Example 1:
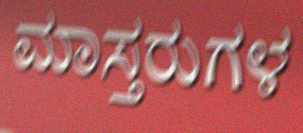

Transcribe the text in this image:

ಮಾಸ್ತರುಗಳ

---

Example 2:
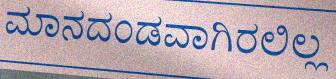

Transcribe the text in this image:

ಮಾನದಂಡವಾಗಿರಲಿಲ್ಲ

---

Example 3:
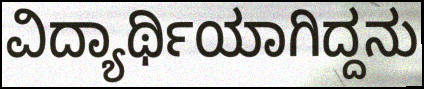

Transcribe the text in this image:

ವಿದ್ಯಾರ್ಥಿಯಾಗಿದ್ದನು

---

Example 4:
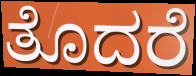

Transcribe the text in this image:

ತೊದರೆ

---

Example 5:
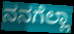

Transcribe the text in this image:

ನನಗೆಲ್ಲಾ